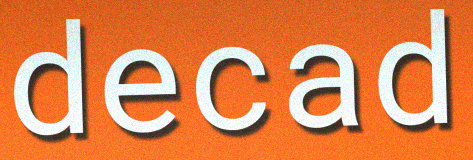
decad